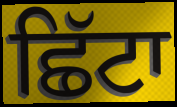
ਛਿੱਟਾ